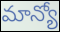
మాన్యో